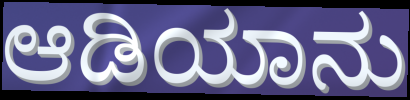
ಆಡಿಯಾನು